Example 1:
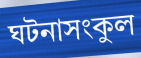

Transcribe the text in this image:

ঘটনাসংকুল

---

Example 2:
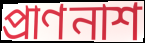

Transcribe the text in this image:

প্রাণনাশ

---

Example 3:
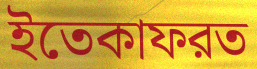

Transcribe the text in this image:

ইতেকাফরত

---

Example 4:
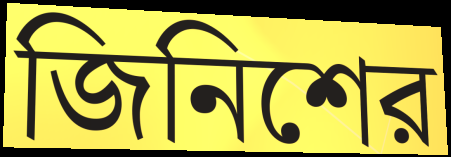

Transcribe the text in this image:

জিনিশের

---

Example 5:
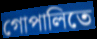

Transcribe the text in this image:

গোপালিতে